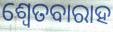
ଶ୍ଵେତବାରାହ